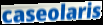
caseolaris